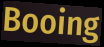
Booing